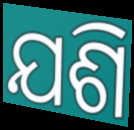
ଯଶି